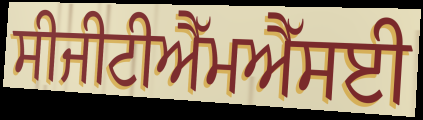
ਸੀਜੀਟੀਐੱਮਐੱਸਈ